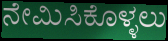
ನೇಮಿಸಿಕೊಳ್ಳಲು